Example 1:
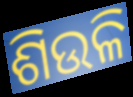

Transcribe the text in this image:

ଶିଉଳି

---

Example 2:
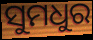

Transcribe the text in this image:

ସୁମଧୁର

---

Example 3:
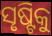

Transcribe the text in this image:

ସୃଷ୍ଟିକୁ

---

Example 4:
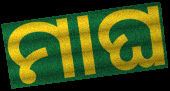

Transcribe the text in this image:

ମାଘ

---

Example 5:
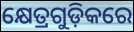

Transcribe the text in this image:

କ୍ଷେତ୍ରଗୁଡ଼ିକରେ